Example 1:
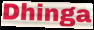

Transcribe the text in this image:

Dhinga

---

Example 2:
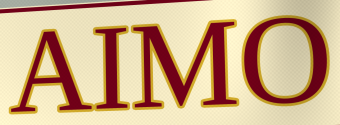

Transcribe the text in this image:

AIMO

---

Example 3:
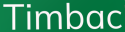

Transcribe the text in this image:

Timbac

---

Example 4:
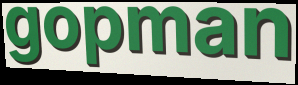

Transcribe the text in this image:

gopman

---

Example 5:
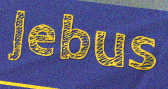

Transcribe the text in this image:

Jebus